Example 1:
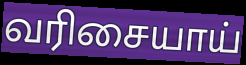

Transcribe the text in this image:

வரிசையாய்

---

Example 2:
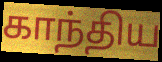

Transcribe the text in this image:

காந்திய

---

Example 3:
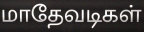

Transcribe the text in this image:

மாதேவடிகள்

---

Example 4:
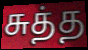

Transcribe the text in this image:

சுத்த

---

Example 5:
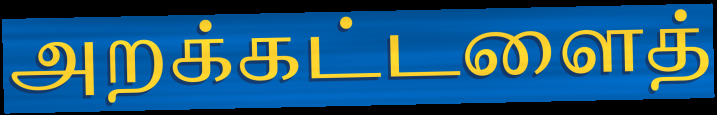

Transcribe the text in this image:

அறக்கட்டளைத்